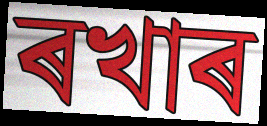
ৰখাৰ